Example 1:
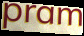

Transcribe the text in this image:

pram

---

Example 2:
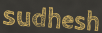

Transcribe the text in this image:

sudhesh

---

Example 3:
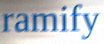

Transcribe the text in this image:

ramify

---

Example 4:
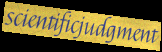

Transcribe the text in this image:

scientificjudgment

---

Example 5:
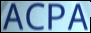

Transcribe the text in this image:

ACPA